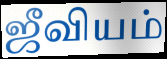
ஜீவியம்